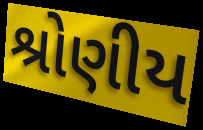
શ્રોણીય